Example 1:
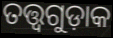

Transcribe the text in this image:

ତତ୍ତ୍ୱଗୁଡ଼ାକ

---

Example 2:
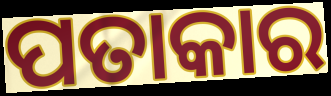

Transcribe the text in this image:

ପତାକାର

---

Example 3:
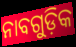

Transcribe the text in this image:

ନାବଗୁଡ଼ିକ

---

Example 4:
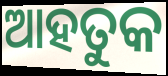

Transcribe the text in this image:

ଆହତୁକ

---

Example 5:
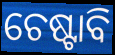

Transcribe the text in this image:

ଚେଷ୍ଟାବି